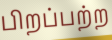
பிறப்பற்ற